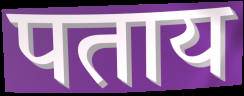
पताय